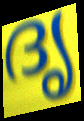
ദൃ